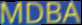
MDBA